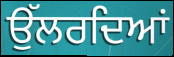
ਉੱਲਰਦਿਆਂ